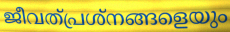
ജീവത്പ്രശ്നങ്ങളെയും